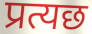
प्रत्यछ